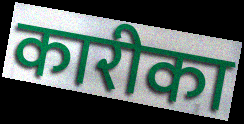
कारीका